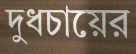
দুধচায়ের